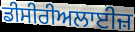
ਡੀਸੀਰੀਅਲਾਈਜ਼